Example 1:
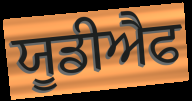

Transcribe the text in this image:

ਯੂਡੀਐਫ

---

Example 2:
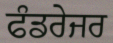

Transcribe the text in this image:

ਫੰਡਰੇਜਰ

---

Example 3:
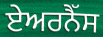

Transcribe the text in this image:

ਏਅਰਨੈੱਸ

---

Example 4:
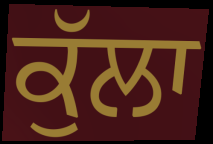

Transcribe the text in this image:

ਕੁੱਲਾ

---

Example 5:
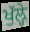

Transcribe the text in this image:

ਖੁੱਲ਼੍ਹੇ